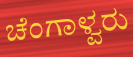
ಚೆಂಗಾಳ್ವರು